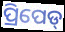
ପ୍ରିପେଡ୍